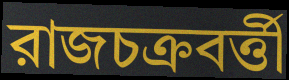
রাজচক্রবর্ত্তী